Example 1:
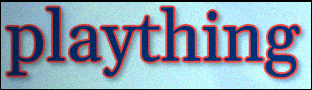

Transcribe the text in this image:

plaything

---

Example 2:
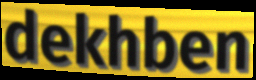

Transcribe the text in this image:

dekhben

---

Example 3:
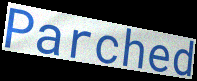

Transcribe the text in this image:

Parched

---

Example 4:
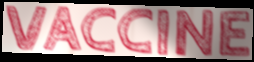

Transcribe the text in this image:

VACCINE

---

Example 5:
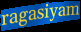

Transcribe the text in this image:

ragasiyam